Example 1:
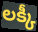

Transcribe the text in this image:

లక్కీ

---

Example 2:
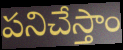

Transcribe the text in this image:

పనిచేస్తాం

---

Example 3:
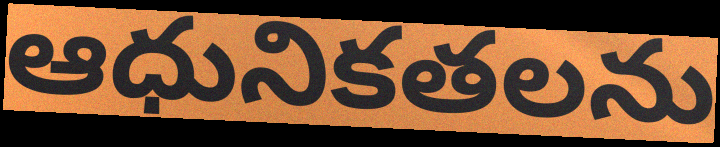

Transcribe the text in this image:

ఆధునికతలను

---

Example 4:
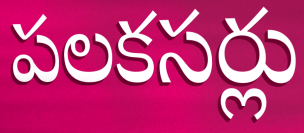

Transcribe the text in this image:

పలకసర్లు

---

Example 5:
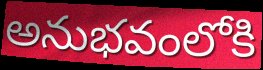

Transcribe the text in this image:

అనుభవంలోకి